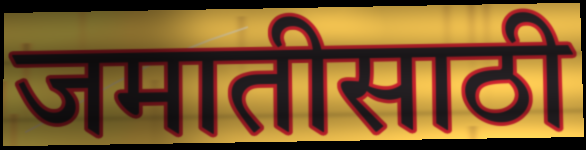
जमातीसाठी